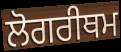
ਲੋਗਰੀਥਮ